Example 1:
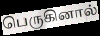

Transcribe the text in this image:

பெருகினால்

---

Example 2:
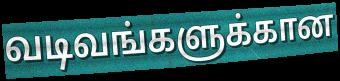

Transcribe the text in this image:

வடிவங்களுக்கான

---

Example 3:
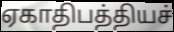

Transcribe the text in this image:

ஏகாதிபத்தியச்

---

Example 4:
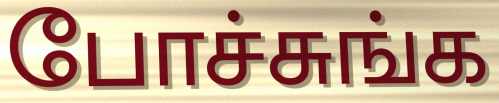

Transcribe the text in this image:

போச்சுங்க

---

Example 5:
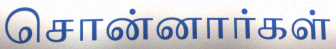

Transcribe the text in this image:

சொன்னார்கள்